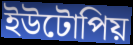
ইউটোপিয়